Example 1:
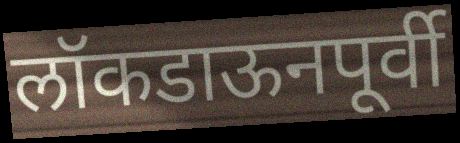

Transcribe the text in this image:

लॉकडाऊनपूर्वी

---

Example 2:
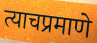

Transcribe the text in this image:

त्याचप्रमाणे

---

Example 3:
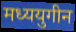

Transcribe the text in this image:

मध्ययुगीन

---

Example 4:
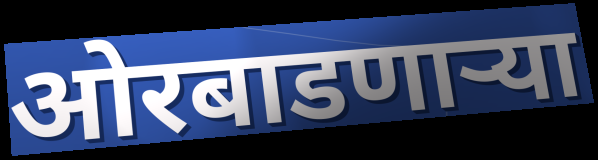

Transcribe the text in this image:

ओरबाडणाऱ्या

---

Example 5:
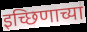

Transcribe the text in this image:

इच्छिणाच्या